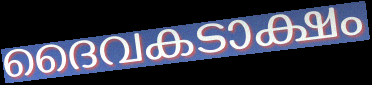
ദൈവകടാക്ഷം